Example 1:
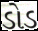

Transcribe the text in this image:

ડોડ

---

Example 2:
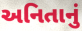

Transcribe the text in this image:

અનિતાનું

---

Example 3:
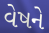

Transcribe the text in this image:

વેષને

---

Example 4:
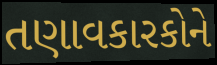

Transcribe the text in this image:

તણાવકારકોને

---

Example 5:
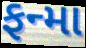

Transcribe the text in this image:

ફન્મા